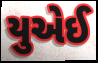
યુએઈ